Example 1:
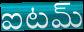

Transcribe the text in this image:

ఐటమ్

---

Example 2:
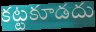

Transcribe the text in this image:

కట్టకూడదు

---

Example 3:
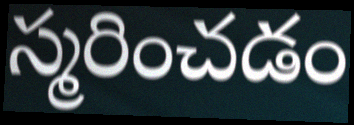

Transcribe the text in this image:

స్మరించడం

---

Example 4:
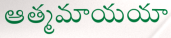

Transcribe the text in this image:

ఆత్మమాయయా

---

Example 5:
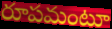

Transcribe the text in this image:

రూపమంటూ